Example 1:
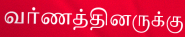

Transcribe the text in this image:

வர்ணத்தினருக்கு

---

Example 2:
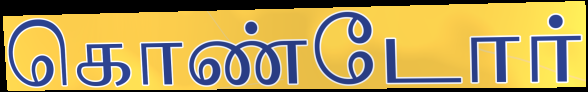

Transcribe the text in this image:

கொண்டோர்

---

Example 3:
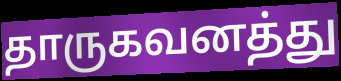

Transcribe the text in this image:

தாருகவனத்து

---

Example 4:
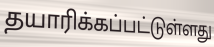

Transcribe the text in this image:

தயாரிக்கப்பட்டுள்ளது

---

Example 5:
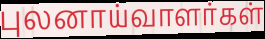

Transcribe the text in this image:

புலனாய்வாளர்கள்